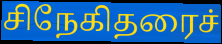
சிநேகிதரைச்